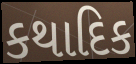
કથાદિક